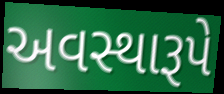
અવસ્થારૂપે